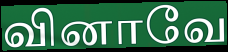
வினாவே